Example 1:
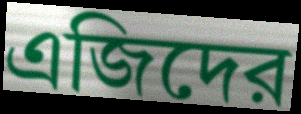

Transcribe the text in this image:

এজিদের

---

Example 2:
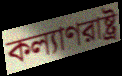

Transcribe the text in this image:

কল্যাণরাষ্ট্র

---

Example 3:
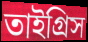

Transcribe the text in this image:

তাইগ্রিস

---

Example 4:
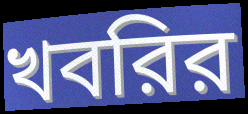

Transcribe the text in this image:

খবরির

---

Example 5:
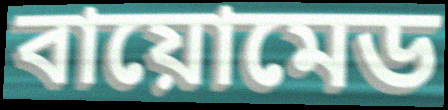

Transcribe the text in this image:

বায়োমেড